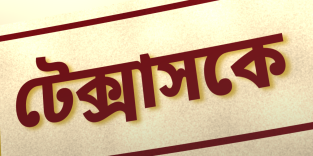
টেক্সাসকে